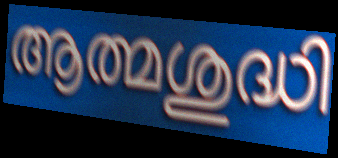
ആത്മശുദ്ധി